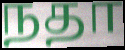
நதா